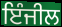
ਇੰਜੀਲ